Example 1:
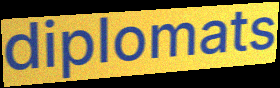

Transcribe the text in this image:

diplomats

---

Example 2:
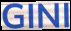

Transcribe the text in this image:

GINI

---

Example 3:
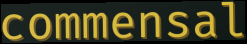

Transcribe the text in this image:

commensal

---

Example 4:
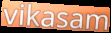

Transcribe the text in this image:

vikasam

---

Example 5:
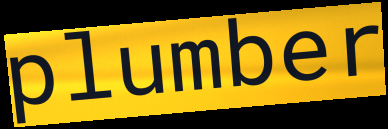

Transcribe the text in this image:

plumber